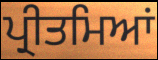
ਪ੍ਰੀਤਮਿਆਂ